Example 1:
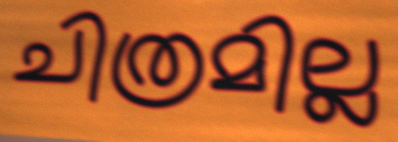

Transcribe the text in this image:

ചിത്രമില്ല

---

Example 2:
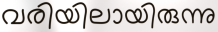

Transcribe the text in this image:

വരിയിലായിരുന്നു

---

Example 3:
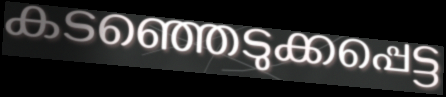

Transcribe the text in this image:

കടഞ്ഞെടുക്കപ്പെട്ട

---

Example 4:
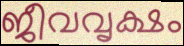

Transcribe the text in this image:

ജീവവൃക്ഷം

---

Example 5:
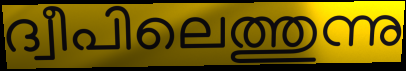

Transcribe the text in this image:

ദ്വീപിലെത്തുന്നു